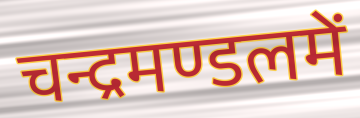
चन्द्रमण्डलमें